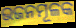
ଭଜନମୂଳକ